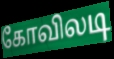
கோவிலடி